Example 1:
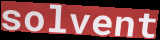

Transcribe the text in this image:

solvent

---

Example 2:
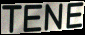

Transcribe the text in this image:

TENE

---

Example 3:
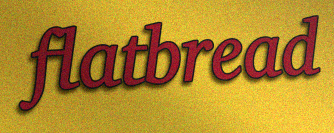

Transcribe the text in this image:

flatbread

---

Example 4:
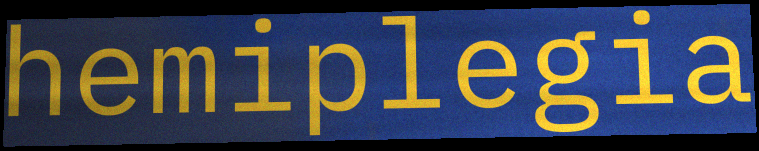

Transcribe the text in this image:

hemiplegia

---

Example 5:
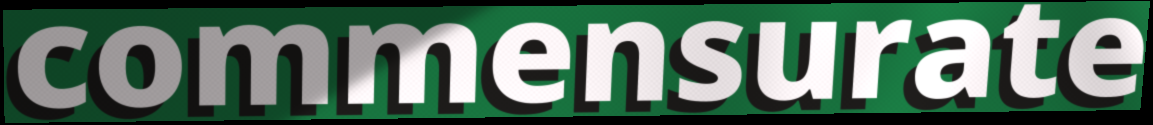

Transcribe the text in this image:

commensurate